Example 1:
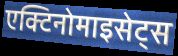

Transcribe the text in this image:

एक्टिनोमाइसेट्स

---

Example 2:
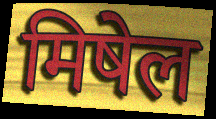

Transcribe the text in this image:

मिषेल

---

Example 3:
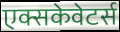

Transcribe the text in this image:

एक्सकेवेटर्स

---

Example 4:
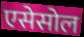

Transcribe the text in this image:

एसेसोल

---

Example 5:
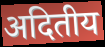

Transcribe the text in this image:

अदितीय